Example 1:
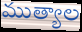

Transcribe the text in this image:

ముత్యాల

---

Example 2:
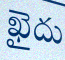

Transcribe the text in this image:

ఖైదు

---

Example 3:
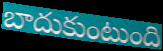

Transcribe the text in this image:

బాదుకుంటుంది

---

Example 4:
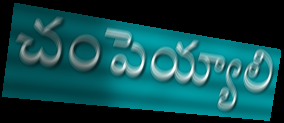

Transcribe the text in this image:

చంపెయ్యాలి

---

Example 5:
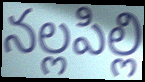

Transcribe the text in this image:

నల్లపిల్లి